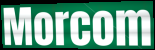
Morcom